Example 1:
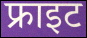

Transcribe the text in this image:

फ्राइट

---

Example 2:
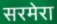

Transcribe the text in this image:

सरमेरा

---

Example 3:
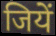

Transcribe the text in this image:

जियें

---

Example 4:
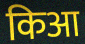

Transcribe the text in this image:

किआ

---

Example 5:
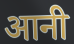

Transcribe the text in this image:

आनी